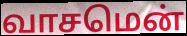
வாசமென்